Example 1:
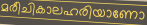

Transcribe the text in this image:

മരീചികാലഹരിയാണോ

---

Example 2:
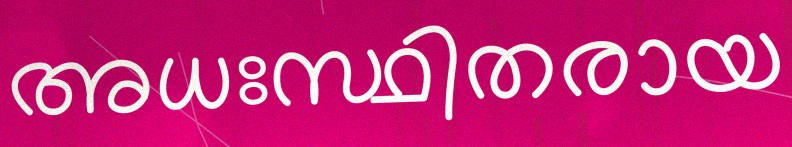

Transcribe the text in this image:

അധഃസ്ഥിതരായ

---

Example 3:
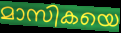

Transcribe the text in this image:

മാസികയെ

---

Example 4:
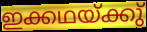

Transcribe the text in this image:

ഇക്കഥയ്ക്കു്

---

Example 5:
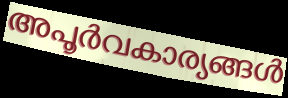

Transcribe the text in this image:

അപൂർവകാര്യങ്ങൾ